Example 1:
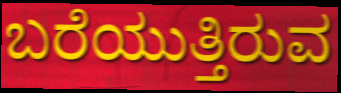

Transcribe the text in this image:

ಬರೆಯುತ್ತಿರುವ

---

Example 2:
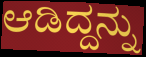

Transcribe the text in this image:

ಆಡಿದ್ದನ್ನು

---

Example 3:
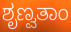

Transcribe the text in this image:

ಶೃಣ್ವತಾಂ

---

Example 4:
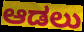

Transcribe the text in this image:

ಆಡಲು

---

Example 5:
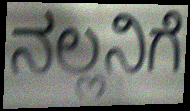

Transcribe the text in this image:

ನಲ್ಲನಿಗೆ